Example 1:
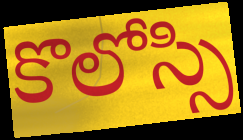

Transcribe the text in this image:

కొలోస్సి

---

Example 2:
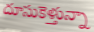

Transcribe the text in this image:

దూసుకెళ్తున్నా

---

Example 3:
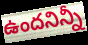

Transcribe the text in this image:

ఉందనిన్నీ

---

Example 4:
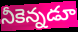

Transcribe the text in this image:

నీకెన్నడూ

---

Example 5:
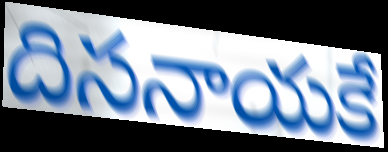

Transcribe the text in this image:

దిసనాయకే